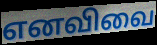
எனவிவை